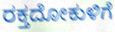
ರಕ್ತದೋಕುಳಿಗೆ